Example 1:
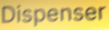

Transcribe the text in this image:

Dispenser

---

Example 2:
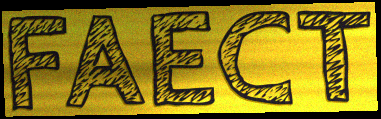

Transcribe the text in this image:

FAECT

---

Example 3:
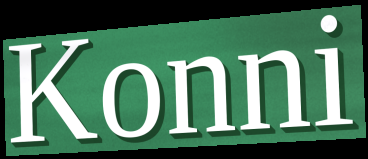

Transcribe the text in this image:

Konni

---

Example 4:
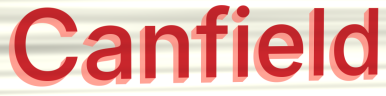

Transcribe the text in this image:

Canfield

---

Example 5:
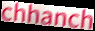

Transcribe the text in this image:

chhanch